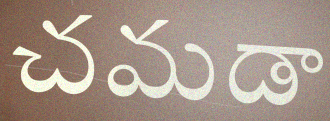
చమడా